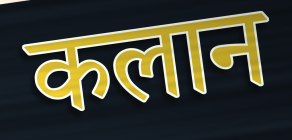
कलान